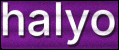
halyo